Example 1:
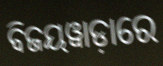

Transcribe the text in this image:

ବିଜୟୱାଡ଼ାରେ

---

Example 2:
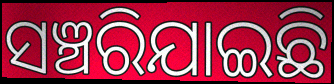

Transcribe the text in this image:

ସଞ୍ଚରିଯାଇଛି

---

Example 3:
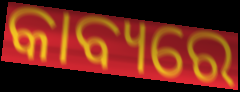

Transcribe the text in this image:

କାବ୍ଯରେ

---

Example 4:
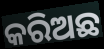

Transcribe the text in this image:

କରିଅଛ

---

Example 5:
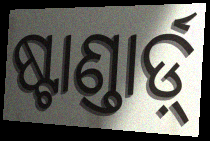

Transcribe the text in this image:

ଷ୍ଟାଣ୍ଡାର୍ଡ଼୍